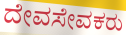
ದೇವಸೇವಕರು